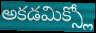
అకడమిక్స్లో